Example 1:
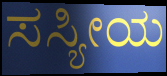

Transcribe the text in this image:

ಸಸ್ಯೀಯ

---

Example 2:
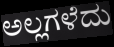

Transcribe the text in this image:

ಅಲ್ಲಗಳೆದು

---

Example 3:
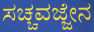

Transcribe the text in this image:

ಸಚ್ಚವಜ್ಜೇನ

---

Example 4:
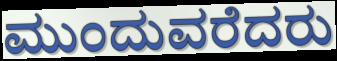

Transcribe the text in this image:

ಮುಂದುವರೆದರು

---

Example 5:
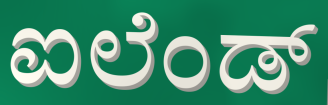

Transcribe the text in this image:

ಐಲೆಂಡ್